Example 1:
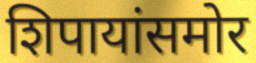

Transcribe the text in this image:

शिपायांसमोर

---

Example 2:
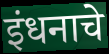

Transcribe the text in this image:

इंधनाचे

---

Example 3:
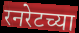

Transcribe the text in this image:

रनरेटच्या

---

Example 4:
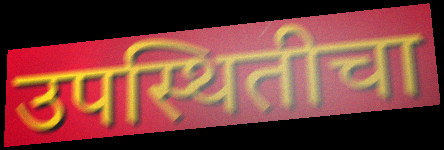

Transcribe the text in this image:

उपस्थितीचा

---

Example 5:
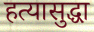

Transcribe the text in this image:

हत्यासुद्धा